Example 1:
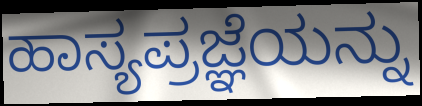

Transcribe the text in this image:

ಹಾಸ್ಯಪ್ರಜ್ಞೆಯನ್ನು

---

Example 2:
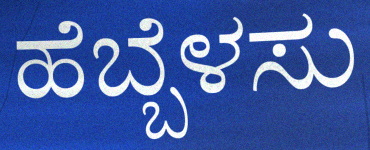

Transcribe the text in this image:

ಹೆಬ್ಬೆಳಸು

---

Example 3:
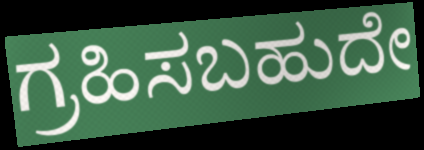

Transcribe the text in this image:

ಗ್ರಹಿಸಬಹುದೇ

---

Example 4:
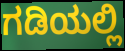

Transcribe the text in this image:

ಗಡಿಯಲ್ಲಿ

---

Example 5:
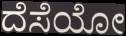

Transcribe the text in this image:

ದೆಸೆಯೋ